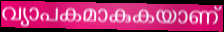
വ്യാപകമാകുകയാണ്